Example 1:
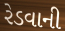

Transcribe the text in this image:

રેડવાની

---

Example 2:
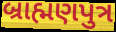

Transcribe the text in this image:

બ્રાહ્મણપુત્ર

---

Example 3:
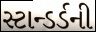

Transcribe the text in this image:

સ્ટાન્ડર્ડની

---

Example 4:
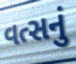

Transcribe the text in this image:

વત્સનું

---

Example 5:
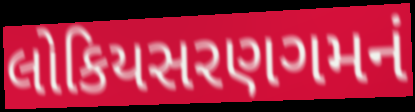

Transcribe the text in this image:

લોકિયસરણગમનં